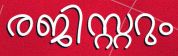
രജിസ്റ്ററും